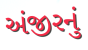
અંજીરનું